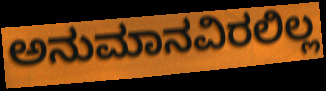
ಅನುಮಾನವಿರಲಿಲ್ಲ